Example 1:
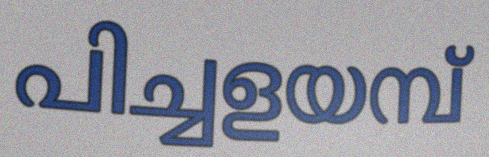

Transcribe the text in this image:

പിച്ചളയമ്പ്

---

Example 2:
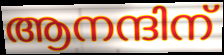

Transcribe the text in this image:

ആനന്ദിന്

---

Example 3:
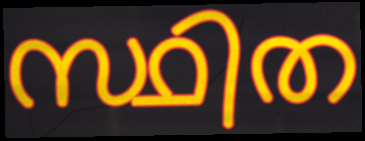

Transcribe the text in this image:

സ്ഥിത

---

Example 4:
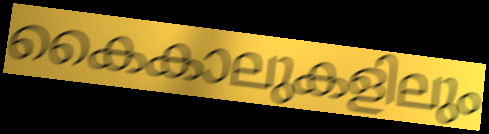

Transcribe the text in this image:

കൈകാലുകളിലും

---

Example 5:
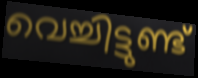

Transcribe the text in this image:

വെച്ചിട്ടുണ്ട്